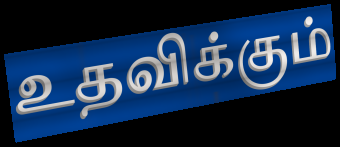
உதவிக்கும்